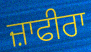
ਜ਼ਾਫੀਰਾ